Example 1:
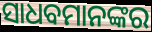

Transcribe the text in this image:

ସାଧବମାନଙ୍କର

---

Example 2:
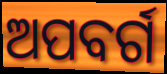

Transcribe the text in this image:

ଅପବର୍ଗ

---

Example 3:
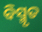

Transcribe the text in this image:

ବିସ୍ମୃତ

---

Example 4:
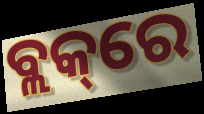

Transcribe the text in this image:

ବ୍ଲକ୍‌ରେ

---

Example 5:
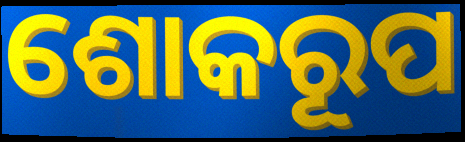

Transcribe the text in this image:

ଶୋକରୂପ